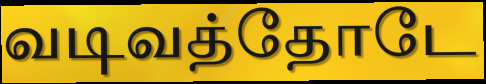
வடிவத்தோடே